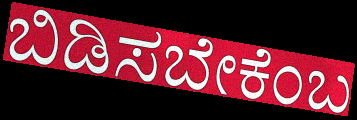
ಬಿಡಿಸಬೇಕೆಂಬ